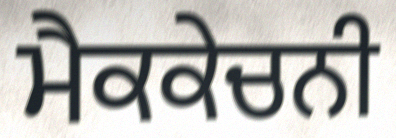
ਮੈਕਕੇਚਨੀ